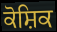
ਕੋਸ਼ਿਕ